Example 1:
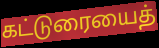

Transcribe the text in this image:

கட்டுரையைத்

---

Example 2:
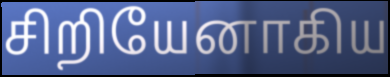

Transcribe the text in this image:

சிறியேனாகிய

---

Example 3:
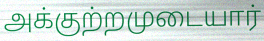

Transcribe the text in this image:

அக்குற்றமுடையார்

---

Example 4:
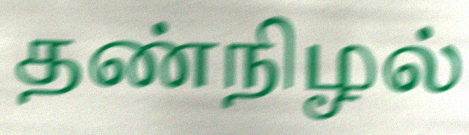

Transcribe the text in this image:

தண்நிழல்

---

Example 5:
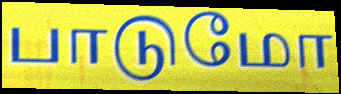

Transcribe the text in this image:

பாடுமோ